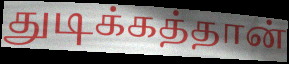
துடிக்கத்தான்